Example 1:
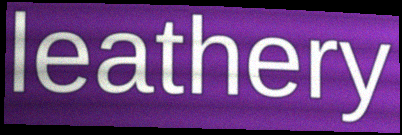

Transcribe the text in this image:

leathery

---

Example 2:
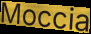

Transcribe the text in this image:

Moccia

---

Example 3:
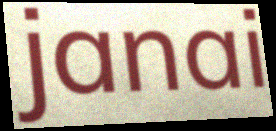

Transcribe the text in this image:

janai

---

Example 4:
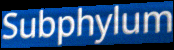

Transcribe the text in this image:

Subphylum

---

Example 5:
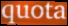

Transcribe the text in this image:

quota